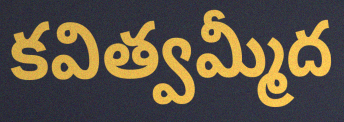
కవిత్వమ్మీద